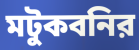
মটুকবনির